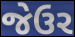
જેઉર